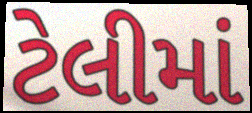
ટેલીમાં